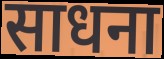
साधना